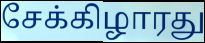
சேக்கிழாரது